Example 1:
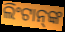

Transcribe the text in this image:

ଲିଂଟାନ୍‍ଙ୍କ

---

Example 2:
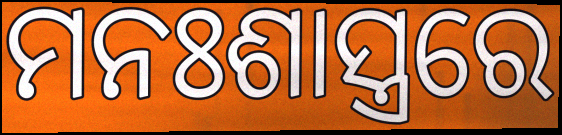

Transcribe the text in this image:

ମନଃଶାସ୍ତ୍ରରେ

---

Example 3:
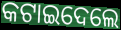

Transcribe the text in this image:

କଟାଇଦେଲେ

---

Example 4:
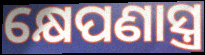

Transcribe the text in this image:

କ୍ଷେପଣାସ୍ତ୍ର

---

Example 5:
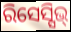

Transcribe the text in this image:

ରିସେସ୍ସିଭ୍